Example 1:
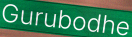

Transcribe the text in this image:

Gurubodhe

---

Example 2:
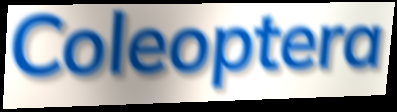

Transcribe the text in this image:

Coleoptera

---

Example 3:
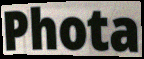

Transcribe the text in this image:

Phota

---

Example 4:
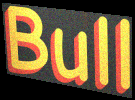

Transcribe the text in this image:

Bull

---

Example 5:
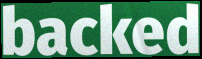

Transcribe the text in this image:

backed